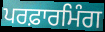
ਪਰਫ਼ਾਰਮਿੰਗ